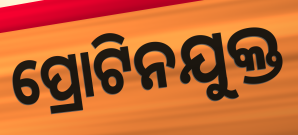
ପ୍ରୋଟିନଯୁକ୍ତ